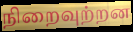
நிறைவுற்றன